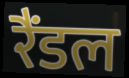
रैंडल